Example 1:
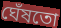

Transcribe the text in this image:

ঘেঁষতো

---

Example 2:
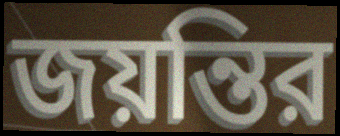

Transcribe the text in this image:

জয়ন্তির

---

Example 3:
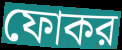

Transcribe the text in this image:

ফোকর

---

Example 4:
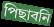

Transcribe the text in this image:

পিছাবনি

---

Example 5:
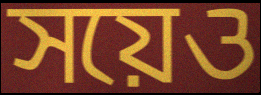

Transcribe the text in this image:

সয়েও